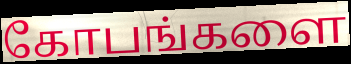
கோபங்களை